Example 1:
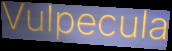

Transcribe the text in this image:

Vulpecula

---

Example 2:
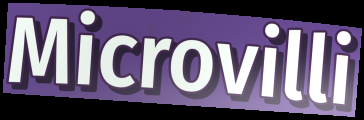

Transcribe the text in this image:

Microvilli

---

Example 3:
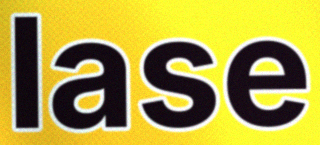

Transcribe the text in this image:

lase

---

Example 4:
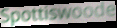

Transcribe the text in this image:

Spottiswoode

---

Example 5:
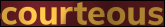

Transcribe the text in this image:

courteous